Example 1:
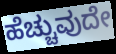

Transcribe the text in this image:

ಹೆಚ್ಚುವುದೇ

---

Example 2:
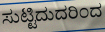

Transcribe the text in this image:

ಸುಟ್ಟಿದುದರಿಂದ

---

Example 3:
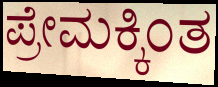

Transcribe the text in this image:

ಪ್ರೇಮಕ್ಕಿಂತ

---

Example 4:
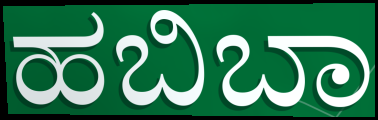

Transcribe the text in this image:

ಹಬಿಬಾ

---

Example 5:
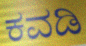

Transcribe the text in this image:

ಕವಡಿ